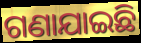
ଗଣାଯାଇଛି